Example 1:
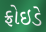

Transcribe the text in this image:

ફ્રોઇડે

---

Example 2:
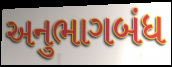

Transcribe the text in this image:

અનુભાગબંધ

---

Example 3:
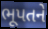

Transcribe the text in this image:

ભૂપતને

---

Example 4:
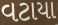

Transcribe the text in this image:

વટાયા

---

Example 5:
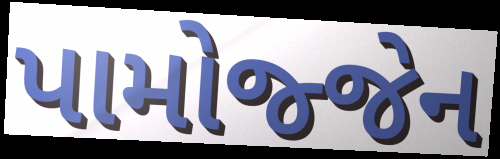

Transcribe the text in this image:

પામોજ્જેન